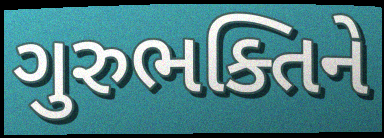
ગુરુભક્તિને